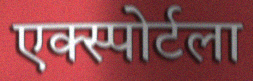
एक्स्पोर्टला